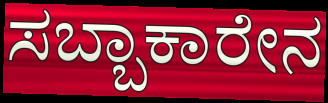
ಸಬ್ಬಾಕಾರೇನ